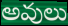
అవులు